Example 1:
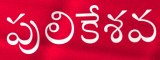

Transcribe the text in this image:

పులికేశవ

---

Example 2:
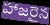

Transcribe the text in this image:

హాజరైన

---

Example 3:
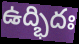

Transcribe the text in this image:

ఉద్భిదః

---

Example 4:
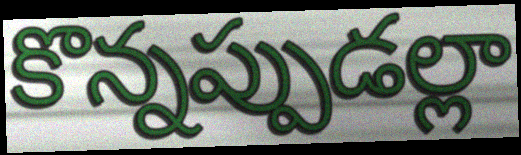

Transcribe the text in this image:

కొన్నప్పుడల్లా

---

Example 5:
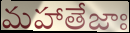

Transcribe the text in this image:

మహాతేజాః